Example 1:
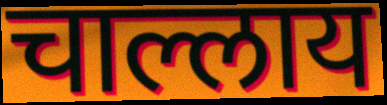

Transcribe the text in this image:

चाल्लाय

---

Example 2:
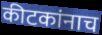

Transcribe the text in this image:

कीटकांनाच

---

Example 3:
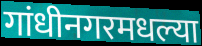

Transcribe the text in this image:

गांधीनगरमधल्या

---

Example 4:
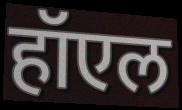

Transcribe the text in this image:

हॉएल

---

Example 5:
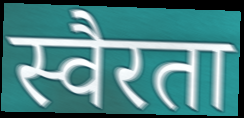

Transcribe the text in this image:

स्वैरता